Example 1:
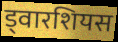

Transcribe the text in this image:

ड्वारशियस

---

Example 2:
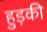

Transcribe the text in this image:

हुड़की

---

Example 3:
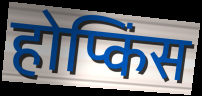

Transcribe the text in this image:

होप्किंस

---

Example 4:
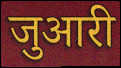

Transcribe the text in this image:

जुआरी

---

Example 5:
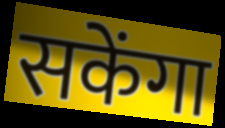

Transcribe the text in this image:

सकेंगा